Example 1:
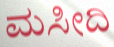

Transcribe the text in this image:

ಮಸೀದಿ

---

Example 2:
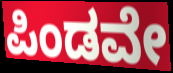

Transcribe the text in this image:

ಪಿಂಡವೇ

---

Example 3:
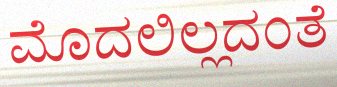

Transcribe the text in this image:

ಮೊದಲಿಲ್ಲದಂತೆ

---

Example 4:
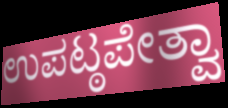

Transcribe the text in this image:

ಉಪಟ್ಠಪೇತ್ವಾ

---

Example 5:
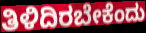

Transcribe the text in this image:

ತಿಳಿದಿರಬೇಕೆಂದು